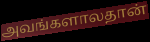
அவங்களாலதான்